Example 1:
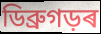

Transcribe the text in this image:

ডিব্ৰুগড়ৰ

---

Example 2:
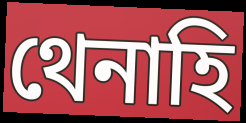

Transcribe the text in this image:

থেনাহি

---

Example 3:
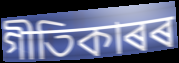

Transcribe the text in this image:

গীতিকাৰৰ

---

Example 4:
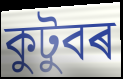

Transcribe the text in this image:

কুটুবৰ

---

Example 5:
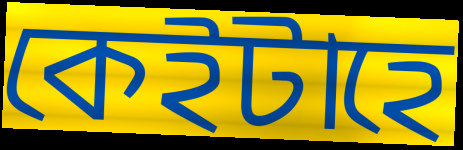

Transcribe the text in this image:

কেইটাহে